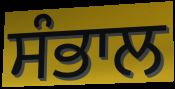
ਸੰਭਾਲ